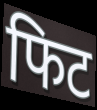
फिट